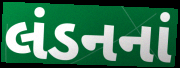
લંડનનાં